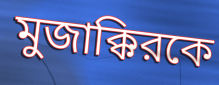
মুজাক্কিরকে